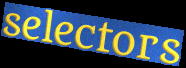
selectors